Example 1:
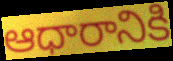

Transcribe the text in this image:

ఆధారానికి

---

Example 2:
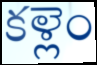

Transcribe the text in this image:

కళ్లెం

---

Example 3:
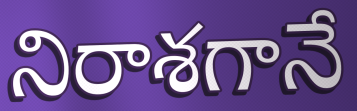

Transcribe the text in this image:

నిరాశగానే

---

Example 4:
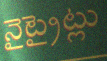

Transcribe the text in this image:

నైట్రైట్లు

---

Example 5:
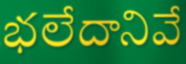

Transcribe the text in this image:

భలేదానివే